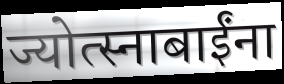
ज्योत्स्नाबाईंना